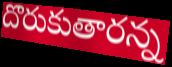
దొరుకుతారన్న